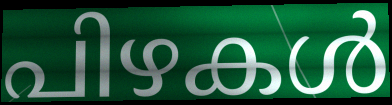
പിഴകൾ